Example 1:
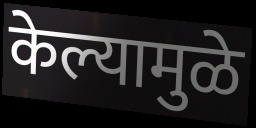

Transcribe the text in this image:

केल्यामुळे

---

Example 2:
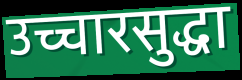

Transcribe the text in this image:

उच्चारसुद्धा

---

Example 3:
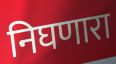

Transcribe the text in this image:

निघणारा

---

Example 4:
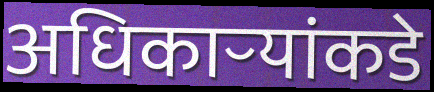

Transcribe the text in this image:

अधिकाऱ्यांकडे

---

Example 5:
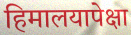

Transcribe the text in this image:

हिमालयापेक्षा